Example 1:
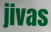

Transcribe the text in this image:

jivas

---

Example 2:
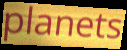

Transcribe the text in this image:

planets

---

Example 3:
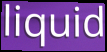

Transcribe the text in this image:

liquid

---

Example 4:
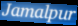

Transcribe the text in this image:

Jamalpur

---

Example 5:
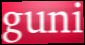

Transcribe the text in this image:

guni